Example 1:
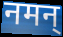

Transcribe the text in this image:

नमन्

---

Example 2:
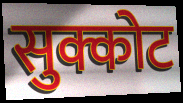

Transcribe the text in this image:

सुक्कोट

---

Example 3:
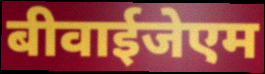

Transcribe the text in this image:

बीवाईजेएम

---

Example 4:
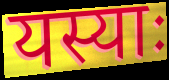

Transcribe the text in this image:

यस्याः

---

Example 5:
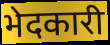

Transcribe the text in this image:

भेदकारी